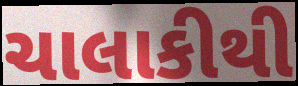
ચાલાકીથી